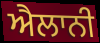
ਐਲਾਨੀ